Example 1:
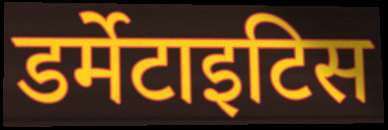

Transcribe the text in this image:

डर्मेटाइटिस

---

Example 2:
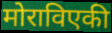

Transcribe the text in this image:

मोराविएकी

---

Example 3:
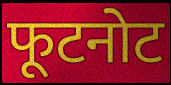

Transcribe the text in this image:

फूटनोट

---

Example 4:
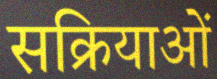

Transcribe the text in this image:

सक्रियाओं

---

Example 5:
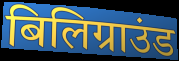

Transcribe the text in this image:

बिलिग्राउंड